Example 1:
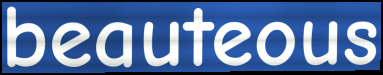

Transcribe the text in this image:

beauteous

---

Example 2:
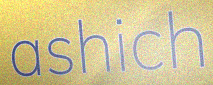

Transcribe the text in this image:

ashich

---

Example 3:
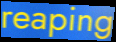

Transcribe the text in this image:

reaping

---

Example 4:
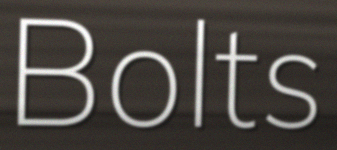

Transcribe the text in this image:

Bolts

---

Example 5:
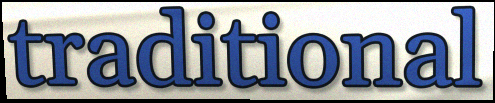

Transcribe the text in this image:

traditional